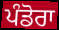
ਪੰਡੋਰਾ